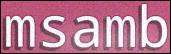
msamb